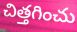
చిత్తగించు